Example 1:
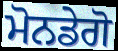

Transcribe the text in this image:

ਮੋਨਡੇਗੋ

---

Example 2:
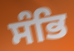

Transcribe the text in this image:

ਸੰਭਿ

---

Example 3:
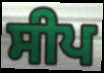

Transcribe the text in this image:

ਸੀਪ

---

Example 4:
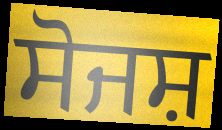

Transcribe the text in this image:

ਸੋਜਸ਼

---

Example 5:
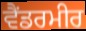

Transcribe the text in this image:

ਵੈਂਡਰਮੀਰ